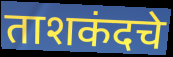
ताशकंदचे